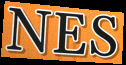
NES